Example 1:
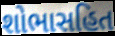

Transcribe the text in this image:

શોભાસહિત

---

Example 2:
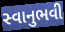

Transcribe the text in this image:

સ્વાનુભવી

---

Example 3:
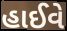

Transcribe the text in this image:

હાઈવે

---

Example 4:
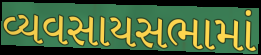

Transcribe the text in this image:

વ્યવસાયસભામાં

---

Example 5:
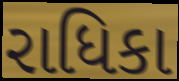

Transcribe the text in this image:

રાધિકા